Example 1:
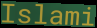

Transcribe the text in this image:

Islami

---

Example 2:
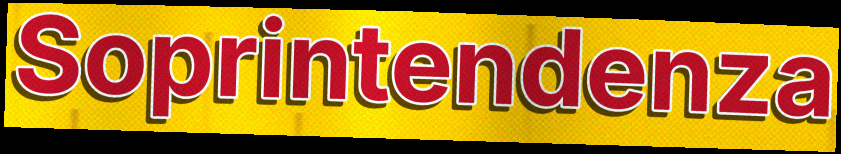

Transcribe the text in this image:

Soprintendenza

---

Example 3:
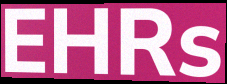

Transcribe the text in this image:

EHRs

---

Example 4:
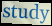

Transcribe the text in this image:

study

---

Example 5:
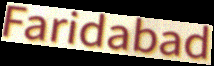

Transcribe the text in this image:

Faridabad